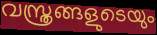
വസ്ത്രങ്ങളുടെയും